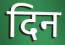
दिन